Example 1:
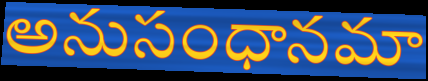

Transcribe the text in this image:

అనుసంధానమా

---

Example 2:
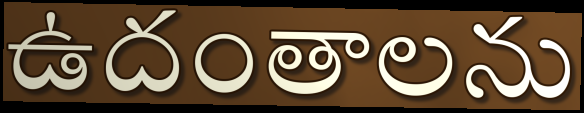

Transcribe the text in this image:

ఉదంతాలను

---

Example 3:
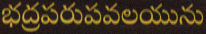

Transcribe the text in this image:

భద్రపరుపవలయును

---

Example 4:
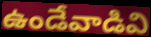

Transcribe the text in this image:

ఉండేవాడివి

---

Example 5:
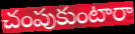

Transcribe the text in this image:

చంపుకుంటారా